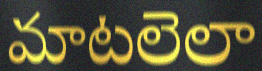
మాటలెలా